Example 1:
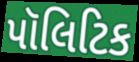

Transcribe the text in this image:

પૉલિટિક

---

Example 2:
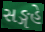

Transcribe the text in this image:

સઙ્ગહે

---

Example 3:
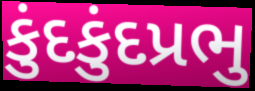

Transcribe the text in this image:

કુંદકુંદપ્રભુ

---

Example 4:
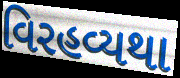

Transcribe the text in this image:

વિરહવ્યથા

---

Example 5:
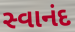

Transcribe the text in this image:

સ્વાનંદ